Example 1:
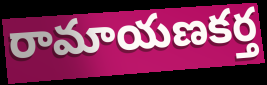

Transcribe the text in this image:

రామాయణకర్త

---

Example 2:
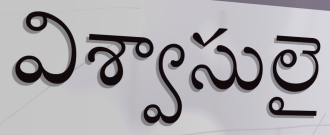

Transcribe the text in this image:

విశ్వాసులై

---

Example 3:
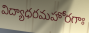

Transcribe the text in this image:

విద్యాధరమహోరగాః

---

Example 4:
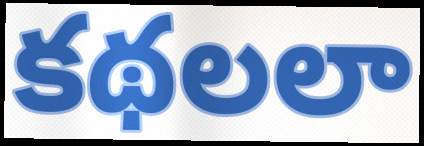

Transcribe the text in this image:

కథలలా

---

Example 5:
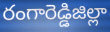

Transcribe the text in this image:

రంగారెడ్డిజిల్లా